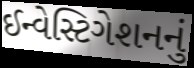
ઈન્વેસ્ટિગેશનનું